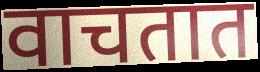
वाचतात